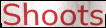
Shoots